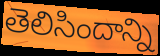
తెలిసిందాన్ని